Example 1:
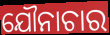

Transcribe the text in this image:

ଯୌନାଚାର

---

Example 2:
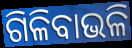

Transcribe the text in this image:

ଗିଳିବାଭଳି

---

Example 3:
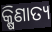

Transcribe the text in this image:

କ୍ଷିଣାତ୍ୟ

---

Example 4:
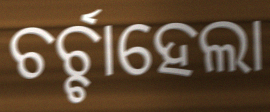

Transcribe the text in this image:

ଚର୍ଚ୍ଚାହେଲା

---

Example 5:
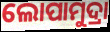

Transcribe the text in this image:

ଲୋପାମୁଦ୍ରା